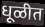
धूळीत